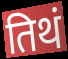
तिथं